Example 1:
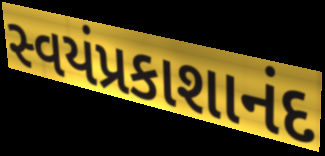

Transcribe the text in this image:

સ્વયંપ્રકાશાનંદ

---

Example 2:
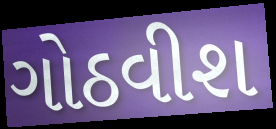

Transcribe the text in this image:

ગોઠવીશ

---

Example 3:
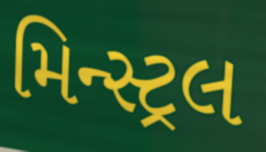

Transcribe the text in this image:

મિન્સ્ટ્રલ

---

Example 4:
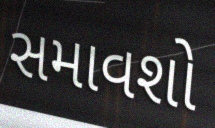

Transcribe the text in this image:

સમાવશો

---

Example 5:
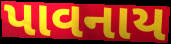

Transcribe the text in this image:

પાવનાય